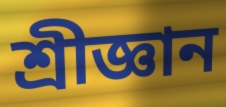
শ্ৰীজ্ঞান